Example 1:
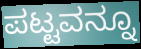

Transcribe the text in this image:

ಪಟ್ಟವನ್ನೂ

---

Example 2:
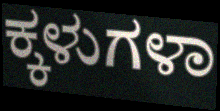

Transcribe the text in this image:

ಕ್ಕಳುಗಳಾ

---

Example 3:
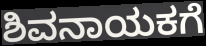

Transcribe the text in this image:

ಶಿವನಾಯಕಗೆ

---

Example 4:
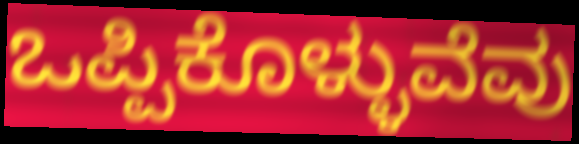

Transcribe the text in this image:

ಒಪ್ಪಿಕೊಳ್ಳುವೆವು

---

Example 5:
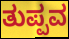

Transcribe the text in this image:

ತುಪ್ಪವ